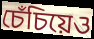
চেঁচিয়েও